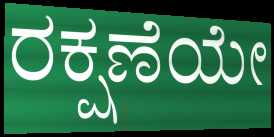
ರಕ್ಷಣೆಯೇ